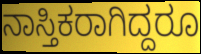
ನಾಸ್ತಿಕರಾಗಿದ್ದರೂ